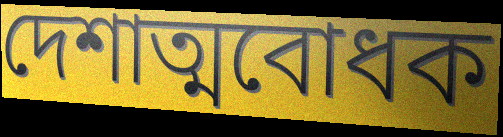
দেশাত্মবোধক